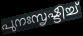
പുനഃസൃഷ്ടിച്ച്